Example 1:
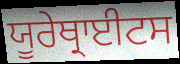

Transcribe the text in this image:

ਯੂਰੇਥ੍ਰਾਈਟਸ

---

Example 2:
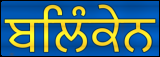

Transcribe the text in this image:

ਬਲਿੰਕੇਨ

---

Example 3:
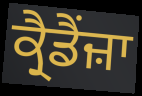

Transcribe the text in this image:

ਕ੍ਰੈਡੈਂਜ਼ਾ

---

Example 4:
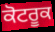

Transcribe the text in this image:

ਕੋਟਰੂਕ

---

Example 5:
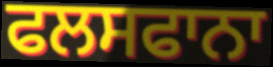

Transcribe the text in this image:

ਫਲਸਫਾਨਾ